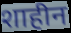
शाहीन